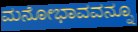
ಮನೋಭಾವವನ್ನೂ